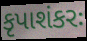
કૃપાશંકરઃ